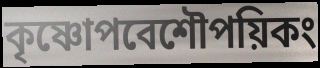
কৃষ্ণোপবেশৌপয়িকং